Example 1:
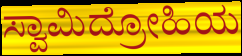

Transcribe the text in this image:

ಸ್ವಾಮಿದ್ರೋಹಿಯ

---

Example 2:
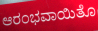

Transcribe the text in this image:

ಆರಂಭವಾಯಿತೊ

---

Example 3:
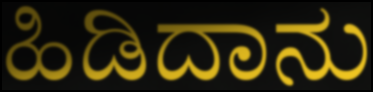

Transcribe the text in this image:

ಹಿಡಿದಾನು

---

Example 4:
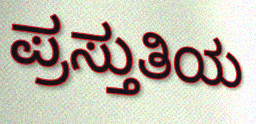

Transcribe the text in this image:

ಪ್ರಸ್ತುತಿಯ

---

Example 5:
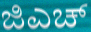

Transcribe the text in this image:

ಜಿಎಚ್